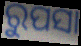
ରୁପସା